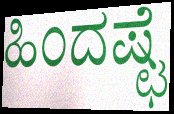
ಹಿಂದಷ್ಟೆ